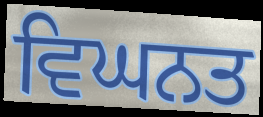
ਵਿਘਨਤ